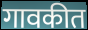
गावकीत